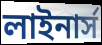
লাইনার্স